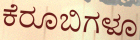
ಕೆರೂಬಿಗಳೂ